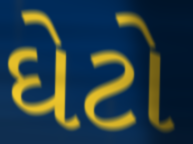
ઘેટો